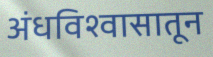
अंधविश्वासातून